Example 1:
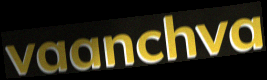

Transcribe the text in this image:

vaanchva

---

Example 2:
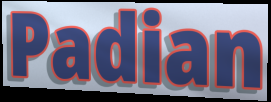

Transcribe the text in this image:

Padian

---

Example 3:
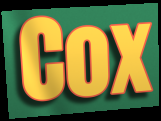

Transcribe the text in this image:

Cox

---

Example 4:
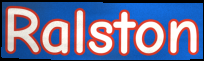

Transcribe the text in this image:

Ralston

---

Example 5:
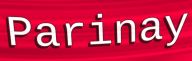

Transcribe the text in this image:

Parinay